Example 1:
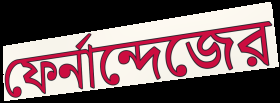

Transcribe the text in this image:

ফের্নান্দেজের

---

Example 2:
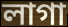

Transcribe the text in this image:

লাগা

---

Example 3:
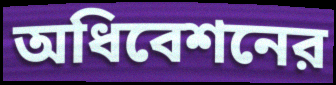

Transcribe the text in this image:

অধিবেশনের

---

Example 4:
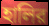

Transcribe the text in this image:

হালির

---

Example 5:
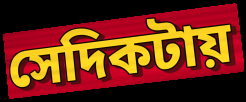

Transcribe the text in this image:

সেদিকটায়